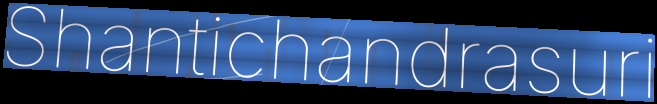
Shantichandrasuri